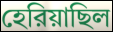
হেরিয়াছিল